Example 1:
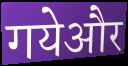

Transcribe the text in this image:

गयेऔर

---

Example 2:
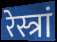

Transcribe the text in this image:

रेस्त्रां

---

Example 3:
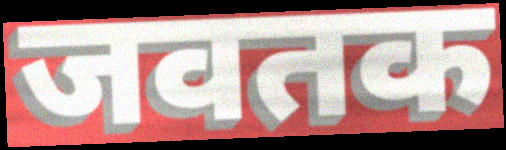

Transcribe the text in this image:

जवतक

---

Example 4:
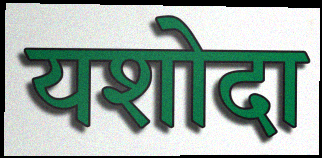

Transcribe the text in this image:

यशोदा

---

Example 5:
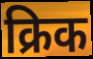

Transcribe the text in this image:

क्रिक